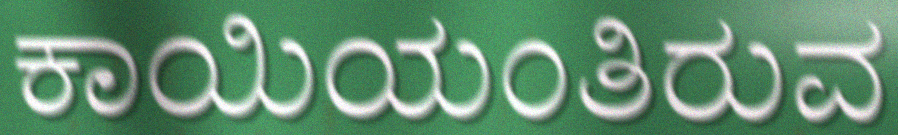
ಕಾಯಿಯಂತಿರುವ